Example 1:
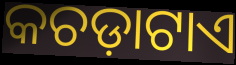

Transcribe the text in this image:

କଚଡ଼ାଟାଏ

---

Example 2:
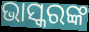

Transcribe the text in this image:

ଭାସ୍କରଙ୍କ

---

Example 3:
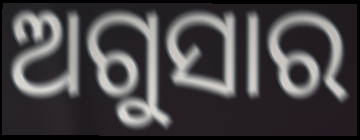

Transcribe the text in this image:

ଅଗୁସାର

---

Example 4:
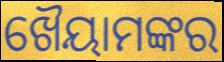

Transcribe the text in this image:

ଖୈୟାମଙ୍କର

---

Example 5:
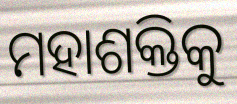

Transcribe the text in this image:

ମହାଶକ୍ତିକୁ